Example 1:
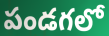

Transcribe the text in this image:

పండగలో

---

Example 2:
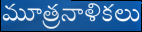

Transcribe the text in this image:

మూత్రనాళికలు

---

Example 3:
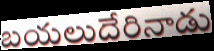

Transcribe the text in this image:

బయలుదేరినాడు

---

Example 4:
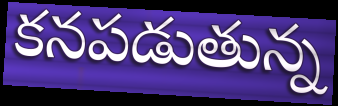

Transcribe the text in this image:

కనపడుతున్న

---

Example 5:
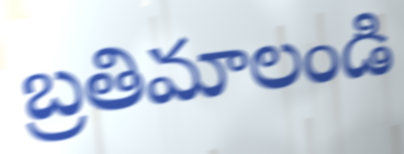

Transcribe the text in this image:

బ్రతిమాలండి